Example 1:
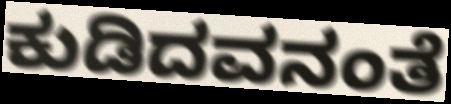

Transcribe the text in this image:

ಕುಡಿದವನಂತೆ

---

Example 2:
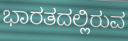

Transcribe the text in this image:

ಭಾರತದಲ್ಲಿರುವ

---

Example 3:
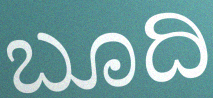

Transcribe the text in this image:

ಬೂದಿ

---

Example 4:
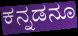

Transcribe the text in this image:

ಕನ್ನಡನೂ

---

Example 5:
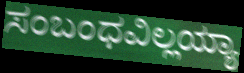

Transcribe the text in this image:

ಸಂಬಂಧವಿಲ್ಲಯ್ಯಾ